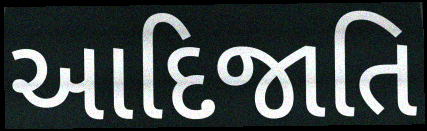
આદિજાતિ